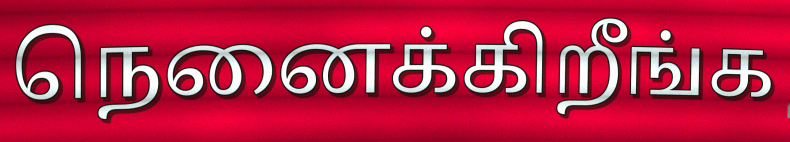
நெனைக்கிறீங்க